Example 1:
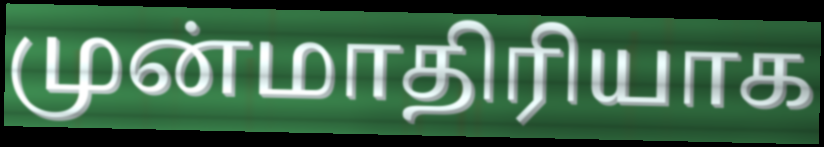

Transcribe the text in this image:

முன்மாதிரியாக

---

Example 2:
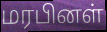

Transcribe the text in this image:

மரபினள்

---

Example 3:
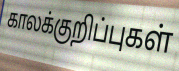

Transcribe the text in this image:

காலக்குறிப்புகள்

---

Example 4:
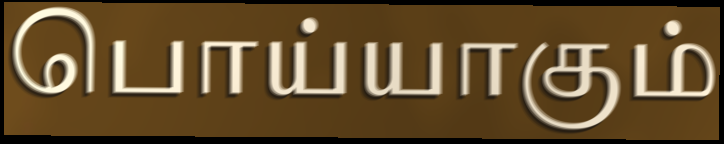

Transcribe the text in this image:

பொய்யாகும்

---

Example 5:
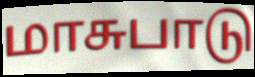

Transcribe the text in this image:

மாசுபாடு